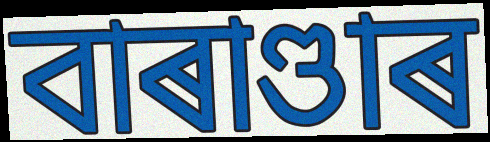
বাৰাণ্ডাৰ